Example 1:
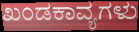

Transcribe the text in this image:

ಖಂಡಕಾವ್ಯಗಳು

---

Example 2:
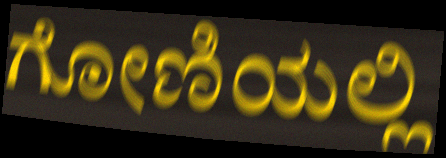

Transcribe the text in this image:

ಗೋಣಿಯಲ್ಲಿ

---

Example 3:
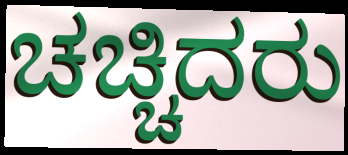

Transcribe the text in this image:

ಚಚ್ಚಿದರು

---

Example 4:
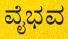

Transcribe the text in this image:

ವೈಭವ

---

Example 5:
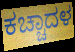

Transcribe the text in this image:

ಕಚ್ಚಾದಳ